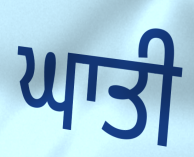
ਘਾਤੀ